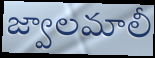
జ్వాలమాలీ